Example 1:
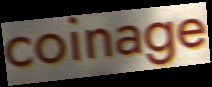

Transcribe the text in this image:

coinage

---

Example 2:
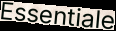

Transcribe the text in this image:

Essentiale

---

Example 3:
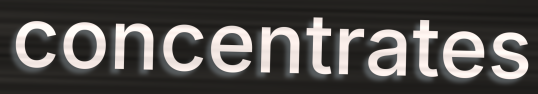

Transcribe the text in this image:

concentrates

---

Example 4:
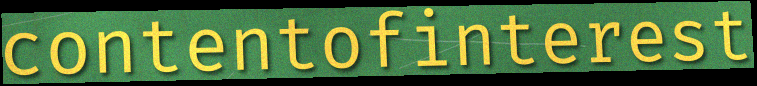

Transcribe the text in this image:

contentofinterest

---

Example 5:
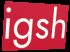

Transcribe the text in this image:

igsh